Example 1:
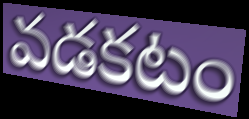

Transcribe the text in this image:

వడకటం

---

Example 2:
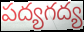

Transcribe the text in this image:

పద్యగద్య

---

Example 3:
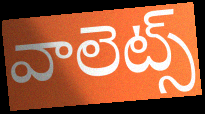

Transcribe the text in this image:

వాలెట్స్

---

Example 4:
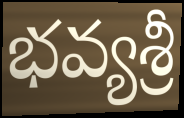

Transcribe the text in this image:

భవ్యశ్రీ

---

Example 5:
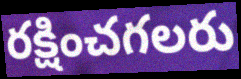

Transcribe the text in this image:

రక్షించగలరు